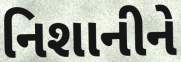
નિશાનીને